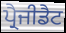
ਪ੍ਰੈਜੀਡੈਟ